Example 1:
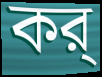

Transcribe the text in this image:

কর্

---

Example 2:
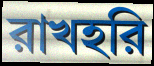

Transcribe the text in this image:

রাখহরি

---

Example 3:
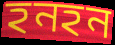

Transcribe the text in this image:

হনহন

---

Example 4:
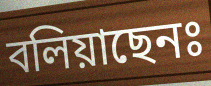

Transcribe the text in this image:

বলিয়াছেনঃ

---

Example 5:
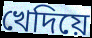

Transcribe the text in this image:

খেদিয়ে